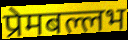
प्रेमबल्लभ